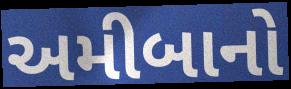
અમીબાનો